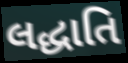
લદ્ધાતિ